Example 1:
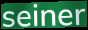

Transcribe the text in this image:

seiner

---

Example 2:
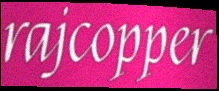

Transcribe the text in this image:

rajcopper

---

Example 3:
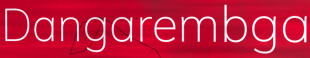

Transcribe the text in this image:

Dangarembga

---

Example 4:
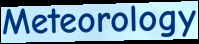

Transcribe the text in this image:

Meteorology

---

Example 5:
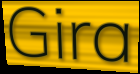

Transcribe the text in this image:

Gira